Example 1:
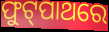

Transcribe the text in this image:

ଫୁଟ୍‍ପାଥରେ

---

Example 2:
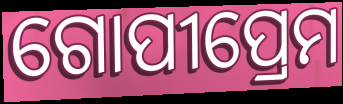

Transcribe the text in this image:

ଗୋପୀପ୍ରେମ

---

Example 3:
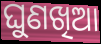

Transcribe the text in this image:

ଘୁଣଖିଆ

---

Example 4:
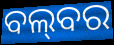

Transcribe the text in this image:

ବଲ୍‌ବର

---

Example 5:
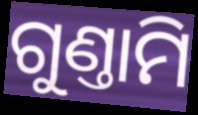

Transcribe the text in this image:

ଗୁଣ୍ତାମି